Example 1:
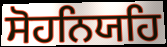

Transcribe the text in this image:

ਸੋਹਨਿਯਹਿ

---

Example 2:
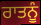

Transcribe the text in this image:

ਰਾਤਨੂੰ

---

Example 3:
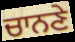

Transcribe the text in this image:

ਚਾਨਣੇ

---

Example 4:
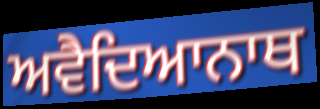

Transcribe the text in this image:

ਅਵੈਦਿਆਨਾਥ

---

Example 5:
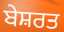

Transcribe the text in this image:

ਬੇਸ਼ਰਤ